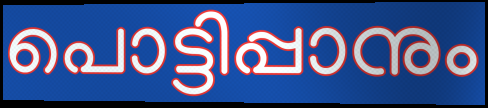
പൊട്ടിപ്പാനും